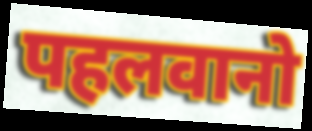
पहलवानो